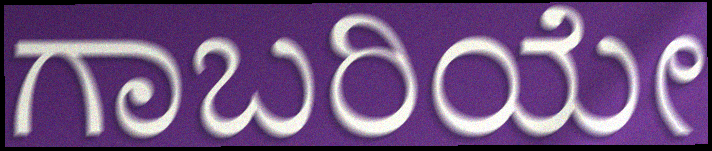
ಗಾಬರಿಯೇ